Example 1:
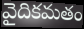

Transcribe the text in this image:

వైదికమతం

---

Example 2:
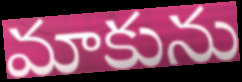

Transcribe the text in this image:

మాకును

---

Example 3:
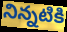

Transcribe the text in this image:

నిన్నటికి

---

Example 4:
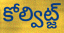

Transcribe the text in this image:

కోల్విట్జ్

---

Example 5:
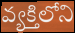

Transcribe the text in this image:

వ్యక్తిలోని